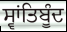
ਸ੍ਵਾਂਤਿਬੂੰਦ